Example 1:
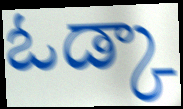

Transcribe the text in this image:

ఓడ్కా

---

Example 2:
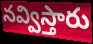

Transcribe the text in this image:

నవ్విస్తారు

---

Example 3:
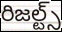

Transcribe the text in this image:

రిజల్ట్స్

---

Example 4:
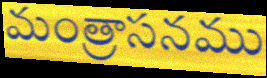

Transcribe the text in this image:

మంత్రాసనము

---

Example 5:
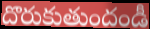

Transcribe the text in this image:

దొరుకుతుందండీ